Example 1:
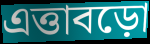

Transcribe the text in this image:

এত্তাবড়ো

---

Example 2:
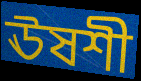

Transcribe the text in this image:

ঊষশী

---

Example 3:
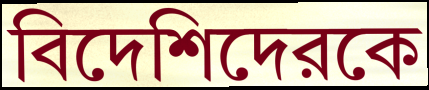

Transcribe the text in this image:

বিদেশিদেরকে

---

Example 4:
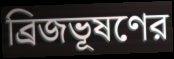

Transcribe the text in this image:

ব্রিজভূষণের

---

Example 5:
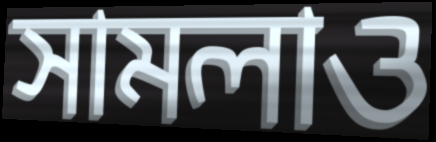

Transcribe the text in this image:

সামলাও